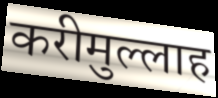
करीमुल्लाह